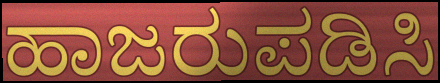
ಹಾಜರುಪಡಿಸಿ